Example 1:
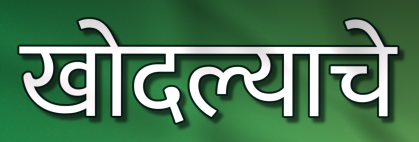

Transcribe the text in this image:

खोदल्याचे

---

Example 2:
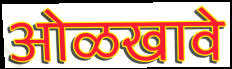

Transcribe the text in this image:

ओळखावे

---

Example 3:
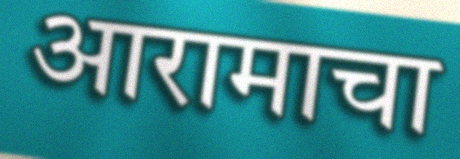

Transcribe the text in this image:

आरामाचा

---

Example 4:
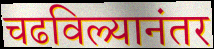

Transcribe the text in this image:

चढविल्यानंतर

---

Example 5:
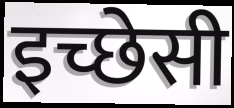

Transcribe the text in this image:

इच्छेसी